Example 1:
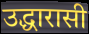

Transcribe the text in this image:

उद्धारासी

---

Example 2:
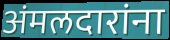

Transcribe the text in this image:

अंमलदारांना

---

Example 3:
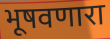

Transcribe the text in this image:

भूषवणारा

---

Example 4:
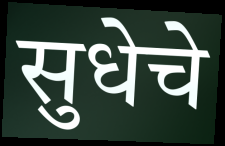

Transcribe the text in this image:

सुधेचे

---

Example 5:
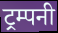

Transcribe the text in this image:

ट्रम्पनी